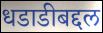
धडाडीबद्दल